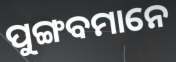
ପୁଙ୍ଗବମାନେ